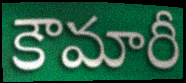
కౌమారీ